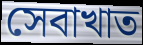
সেবাখাত